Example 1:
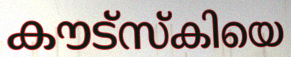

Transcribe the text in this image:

കൗട്സ്കിയെ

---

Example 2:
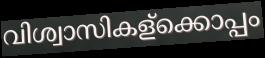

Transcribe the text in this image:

വിശ്വാസികള്ക്കൊപ്പം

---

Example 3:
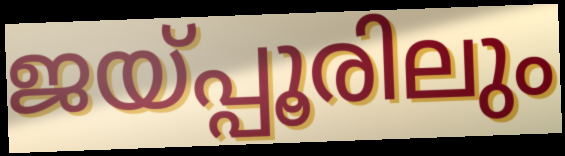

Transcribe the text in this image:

ജയ്പ്പൂരിലും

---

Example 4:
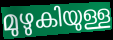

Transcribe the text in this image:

മുഴുകിയുള്ള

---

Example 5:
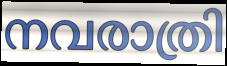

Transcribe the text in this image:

നവരാത്രി